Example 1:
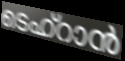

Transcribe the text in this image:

ടെഹ്റാൻ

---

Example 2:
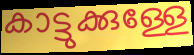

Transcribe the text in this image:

കാട്ടുക്കുള്ളേ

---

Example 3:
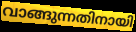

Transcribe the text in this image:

വാങ്ങുന്നതിനായി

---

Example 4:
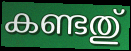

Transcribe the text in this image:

കണ്ടതു്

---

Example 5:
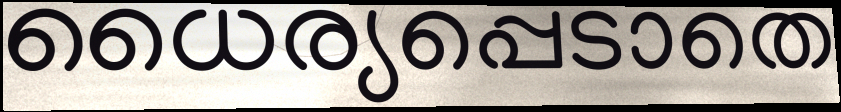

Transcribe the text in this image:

ധൈര്യപ്പെടാതെ